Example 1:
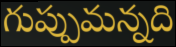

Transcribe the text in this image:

గుప్పుమన్నది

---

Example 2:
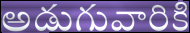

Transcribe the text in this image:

అడుగువారికి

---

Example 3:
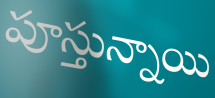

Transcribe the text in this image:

పూస్తున్నాయి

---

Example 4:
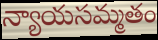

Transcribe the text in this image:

న్యాయసమ్మతం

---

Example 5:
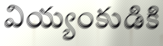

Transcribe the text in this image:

వియ్యంకుడికి